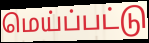
மெய்ப்பட்டு